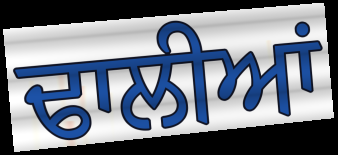
ਢਾਲੀਆਂ